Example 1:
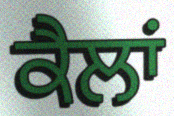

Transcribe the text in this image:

ਕੈਲਾਂ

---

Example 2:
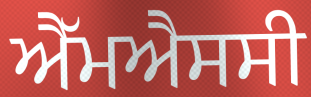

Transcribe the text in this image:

ਐੱਮਐਸਸੀ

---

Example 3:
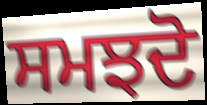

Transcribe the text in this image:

ਸਮਝਦੋ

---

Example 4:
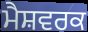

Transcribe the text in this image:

ਮੈਸ਼ਵਰਕ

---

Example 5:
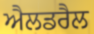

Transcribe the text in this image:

ਐਲਡਰੈਲ